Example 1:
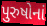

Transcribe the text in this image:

પુરુષોનાં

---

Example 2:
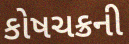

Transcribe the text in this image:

કોષચક્રની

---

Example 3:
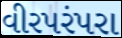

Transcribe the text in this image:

વીરપરંપરા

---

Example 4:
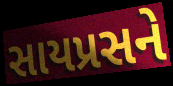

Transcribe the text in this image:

સાયપ્રસને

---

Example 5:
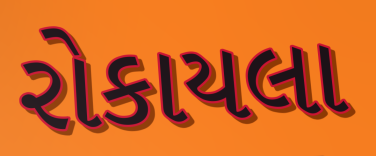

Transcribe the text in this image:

રોકાયલા